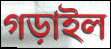
গড়াইল